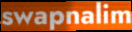
swapnalim